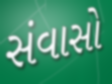
સંવાસો